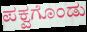
ಪಕ್ವಗೊಂಡು